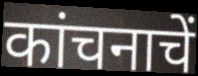
कांचनाचें